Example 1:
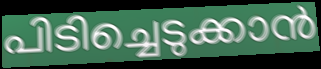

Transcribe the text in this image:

പിടിച്ചെടുക്കാൻ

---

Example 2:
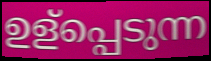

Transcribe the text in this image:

ഉള്പ്പെടുന്ന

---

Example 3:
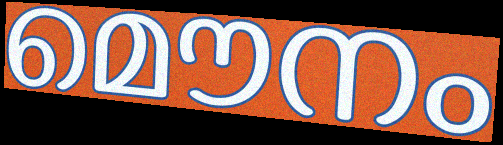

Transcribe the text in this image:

മൌനം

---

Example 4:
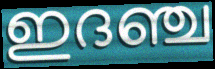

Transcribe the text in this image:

ഇദഞ്ച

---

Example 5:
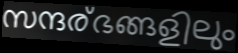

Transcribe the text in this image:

സന്ദര്ഭങ്ങളിലും